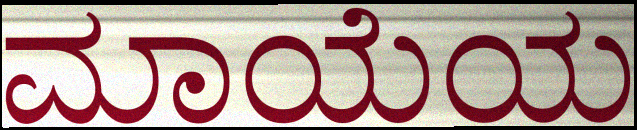
ಮಾಯೆಯ